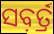
ସବ଼ର୍ତ୍ର